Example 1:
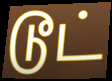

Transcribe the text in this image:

டூட்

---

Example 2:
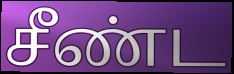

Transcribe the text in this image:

சீண்ட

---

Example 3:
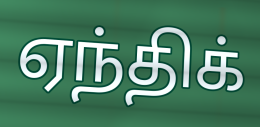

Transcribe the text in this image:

ஏந்திக்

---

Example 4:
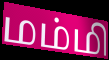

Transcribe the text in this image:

மம்மி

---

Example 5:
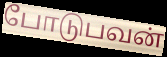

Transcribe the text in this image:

போடுபவன்